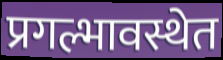
प्रगल्भावस्थेत